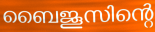
ബൈജൂസിന്റെ